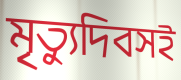
মৃত্যুদিবসই